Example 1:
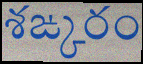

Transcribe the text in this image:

శఙ్కరం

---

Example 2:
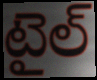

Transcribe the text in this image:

టైల్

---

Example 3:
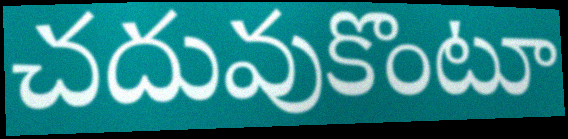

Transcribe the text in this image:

చదువుకొంటూ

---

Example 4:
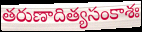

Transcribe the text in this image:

తరుణాదిత్యసంకాశః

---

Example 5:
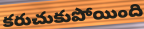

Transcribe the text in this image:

కరుచుకుపోయింది